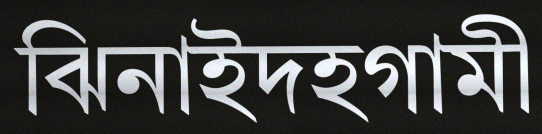
ঝিনাইদহগামী